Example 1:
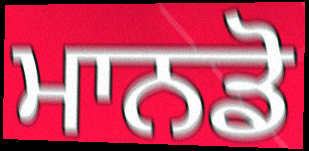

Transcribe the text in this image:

ਮਾਨਡੋ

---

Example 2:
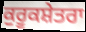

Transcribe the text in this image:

ਕੁਰੂਕਸ਼ੇਤਰਾ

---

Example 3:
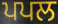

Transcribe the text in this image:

ਪਪਲ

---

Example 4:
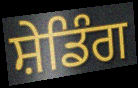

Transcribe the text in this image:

ਸ਼ੇਡਿੰਗ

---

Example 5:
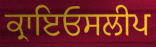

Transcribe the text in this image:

ਕ੍ਰਾਇਓਸਲੀਪ